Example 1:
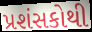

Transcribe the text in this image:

પ્રશંસકોથી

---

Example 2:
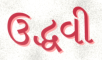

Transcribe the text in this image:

ઉદ્ધવી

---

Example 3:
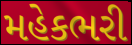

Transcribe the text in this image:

મહેકભરી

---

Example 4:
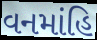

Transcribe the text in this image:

વનમાંહિ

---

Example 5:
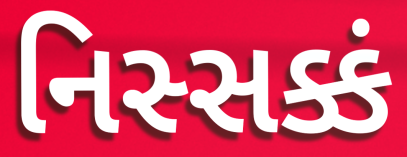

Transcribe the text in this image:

નિસ્સક્કં